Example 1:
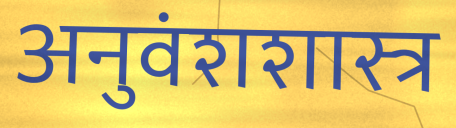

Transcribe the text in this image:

अनुवंशशास्त्र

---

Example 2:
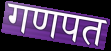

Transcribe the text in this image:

गणपत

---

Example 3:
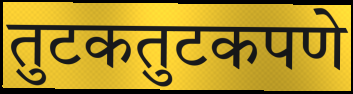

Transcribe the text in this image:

तुटकतुटकपणे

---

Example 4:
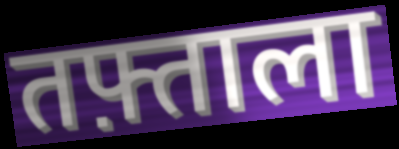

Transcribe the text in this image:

तफ़्ताला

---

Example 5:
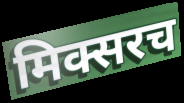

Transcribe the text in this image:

मिक्सरच